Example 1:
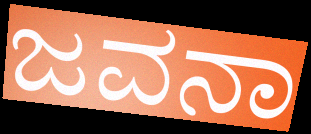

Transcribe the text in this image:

ಜವನಾ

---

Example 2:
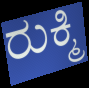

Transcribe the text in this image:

ರುಕ್ಮಿ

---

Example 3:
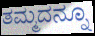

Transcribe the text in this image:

ತಮ್ಮದನ್ನೂ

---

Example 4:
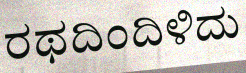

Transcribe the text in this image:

ರಥದಿಂದಿಳಿದು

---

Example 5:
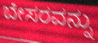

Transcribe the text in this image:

ಬೇಸರವನ್ನು